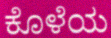
ಕೊಳೆಯ